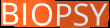
BIOPSY